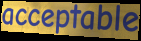
acceptable